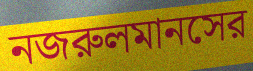
নজরুলমানসের